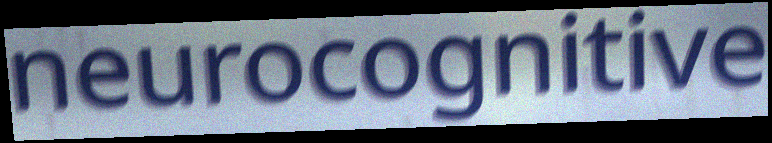
neurocognitive